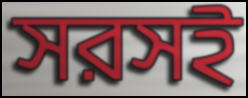
সরসই